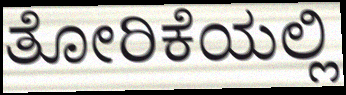
ತೋರಿಕೆಯಲ್ಲಿ